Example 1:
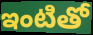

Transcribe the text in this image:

ఇంటితో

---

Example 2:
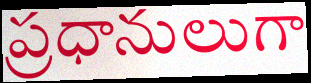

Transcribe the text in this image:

ప్రధానులుగా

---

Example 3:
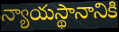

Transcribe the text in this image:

న్యాయస్థానానికి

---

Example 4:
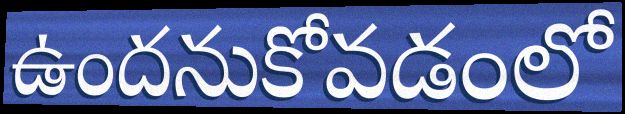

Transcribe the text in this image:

ఉందనుకోవడంలో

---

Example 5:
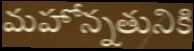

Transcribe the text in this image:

మహోన్నతునికి